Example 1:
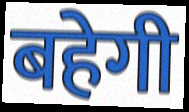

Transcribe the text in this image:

बहेगी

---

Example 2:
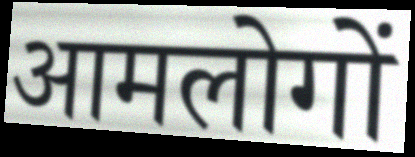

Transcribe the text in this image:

आमलोगों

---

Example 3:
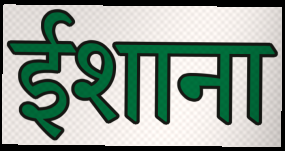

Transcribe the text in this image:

ईशाना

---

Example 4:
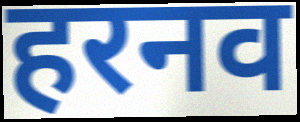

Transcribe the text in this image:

हरनव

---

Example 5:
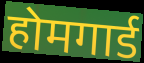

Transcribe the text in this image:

होमगार्ड